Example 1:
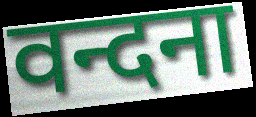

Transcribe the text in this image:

वन्दना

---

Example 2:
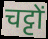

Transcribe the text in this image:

चट्टों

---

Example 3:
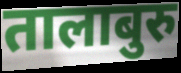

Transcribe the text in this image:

तालाबुरु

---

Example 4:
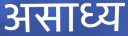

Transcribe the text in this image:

असाध्य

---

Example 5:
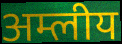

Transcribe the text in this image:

अम्लीय